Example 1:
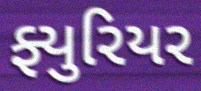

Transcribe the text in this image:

ફ્યુરિયર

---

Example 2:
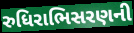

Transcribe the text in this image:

રુધિરાભિસરણની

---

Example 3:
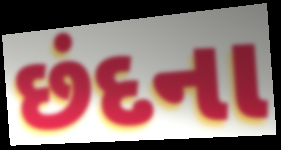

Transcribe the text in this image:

છંદના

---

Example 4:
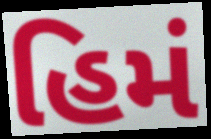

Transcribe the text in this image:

હિમં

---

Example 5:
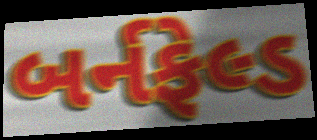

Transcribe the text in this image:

બર્નફેલ્ડ